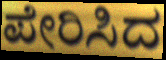
ಪೇರಿಸಿದ